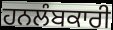
ਹਨਲੰਬਕਾਰੀ